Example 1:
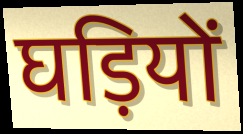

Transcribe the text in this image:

घड़ियों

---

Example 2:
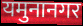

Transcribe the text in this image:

यमुनानगर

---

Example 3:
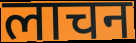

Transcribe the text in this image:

लाचन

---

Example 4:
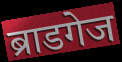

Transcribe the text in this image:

ब्राडगेज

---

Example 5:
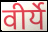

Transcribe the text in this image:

वीर्ये